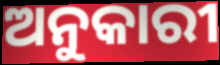
ଅନୁକାରୀ